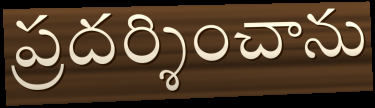
ప్రదర్శించాను